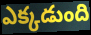
ఎక్కడుంది